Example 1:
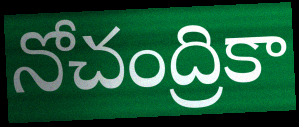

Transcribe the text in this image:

నోచంద్రికా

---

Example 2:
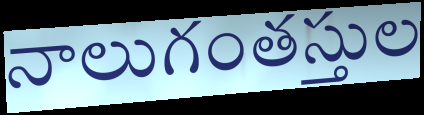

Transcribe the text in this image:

నాలుగంతస్తుల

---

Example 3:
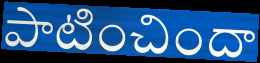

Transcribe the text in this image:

పాటించిందా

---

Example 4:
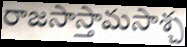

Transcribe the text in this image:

రాజసాస్తామసాశ్చ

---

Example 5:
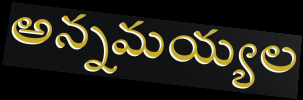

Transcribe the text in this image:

అన్నమయ్యల